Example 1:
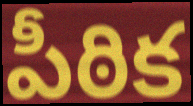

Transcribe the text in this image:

పీఠిక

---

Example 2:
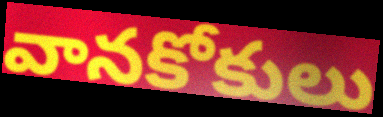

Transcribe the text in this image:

వానకోకులు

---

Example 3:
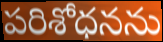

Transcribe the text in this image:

పరిశోధనను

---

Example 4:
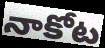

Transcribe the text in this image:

నాకోట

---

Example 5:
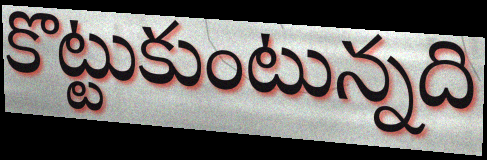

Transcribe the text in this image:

కొట్టుకుంటున్నది